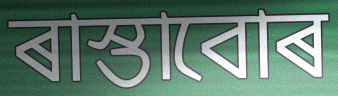
ৰাস্তাবোৰ